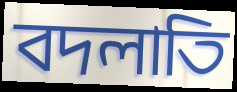
বদলাতি